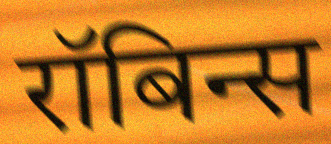
रॉबिन्स